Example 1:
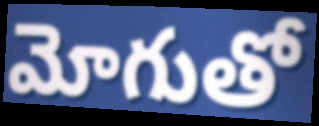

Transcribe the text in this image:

మోగుతో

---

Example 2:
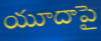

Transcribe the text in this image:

యూదాపై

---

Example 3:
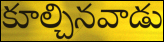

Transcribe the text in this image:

కూల్చినవాడు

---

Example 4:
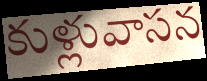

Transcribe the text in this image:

కుళ్లువాసన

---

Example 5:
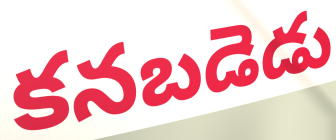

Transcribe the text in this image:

కనబడెడు